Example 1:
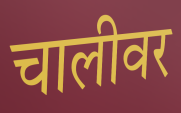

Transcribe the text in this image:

चालीवर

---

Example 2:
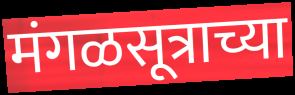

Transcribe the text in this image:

मंगळसूत्राच्या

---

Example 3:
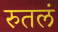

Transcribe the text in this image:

रुतलं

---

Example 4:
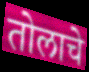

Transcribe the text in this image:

तोलाचे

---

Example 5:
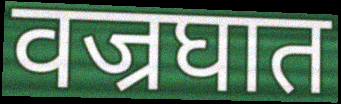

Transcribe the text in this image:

वज्रघात